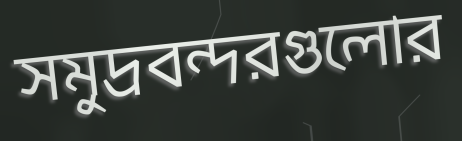
সমুদ্রবন্দরগুলোর